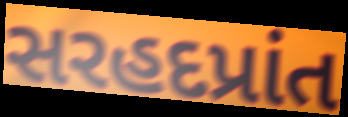
સરહદપ્રાંત